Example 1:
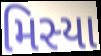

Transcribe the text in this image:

મિસ્યા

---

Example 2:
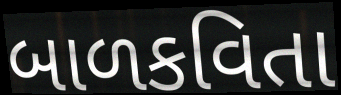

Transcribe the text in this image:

બાળકવિતા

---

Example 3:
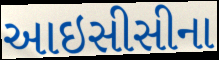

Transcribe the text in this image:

આઇસીસીના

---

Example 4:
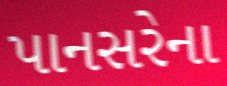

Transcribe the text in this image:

પાનસરેના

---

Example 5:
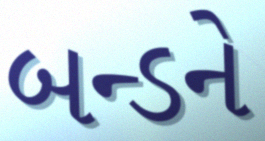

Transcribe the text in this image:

બન્ડને